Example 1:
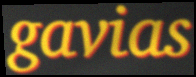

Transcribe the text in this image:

gavias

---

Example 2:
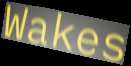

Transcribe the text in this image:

Wakes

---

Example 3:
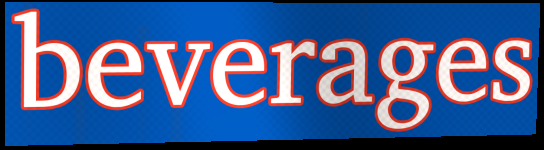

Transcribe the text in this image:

beverages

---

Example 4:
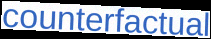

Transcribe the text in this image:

counterfactual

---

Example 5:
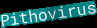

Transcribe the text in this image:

Pithovirus